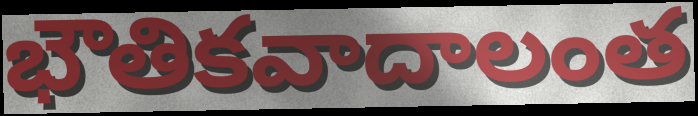
భౌతికవాదాలంత